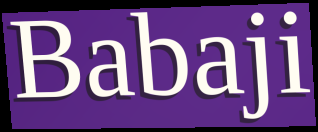
Babaji